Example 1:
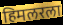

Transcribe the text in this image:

हिमलरला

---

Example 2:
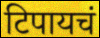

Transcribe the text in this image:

टिपायचं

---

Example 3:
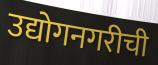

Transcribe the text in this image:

उद्योगनगरीची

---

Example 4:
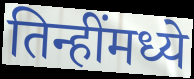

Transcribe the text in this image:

तिन्हींमध्ये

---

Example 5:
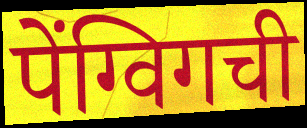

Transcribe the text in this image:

पेंग्विगची